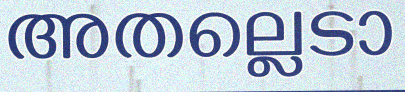
അതല്ലെടാ